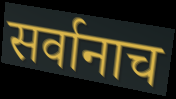
सर्वानाच